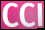
CCI